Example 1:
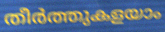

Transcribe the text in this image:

തീർത്തുകളയാം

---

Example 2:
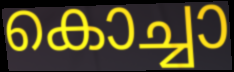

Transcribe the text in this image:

കൊച്ചാ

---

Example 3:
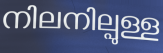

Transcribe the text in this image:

നിലനില്പുള്ള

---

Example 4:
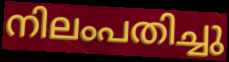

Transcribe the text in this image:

നിലംപതിച്ചു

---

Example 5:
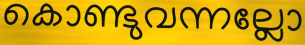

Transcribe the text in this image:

കൊണ്ടുവന്നല്ലോ